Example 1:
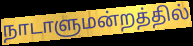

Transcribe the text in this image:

நாடாளுமன்றத்தில்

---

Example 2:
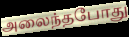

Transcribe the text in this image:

அலைந்தபோது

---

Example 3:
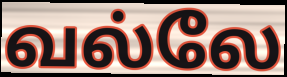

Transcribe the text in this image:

வல்லே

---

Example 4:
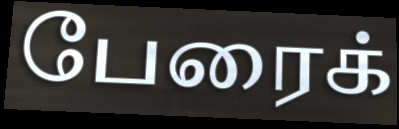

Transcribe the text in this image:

பேரைக்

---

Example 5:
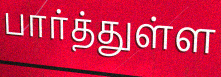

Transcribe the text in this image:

பார்த்துள்ள